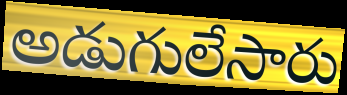
అడుగులేసారు